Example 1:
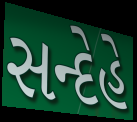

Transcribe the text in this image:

સન્દેહે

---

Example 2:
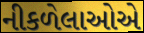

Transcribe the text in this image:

નીકળેલાઓએ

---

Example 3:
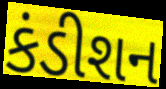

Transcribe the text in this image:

કંડીશન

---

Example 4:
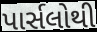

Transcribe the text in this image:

પાર્સલોથી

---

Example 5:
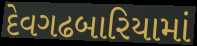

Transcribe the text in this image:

દેવગઢબારિયામાં